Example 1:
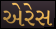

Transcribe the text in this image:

એરેસ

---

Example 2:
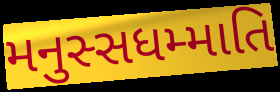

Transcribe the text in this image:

મનુસ્સધમ્માતિ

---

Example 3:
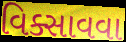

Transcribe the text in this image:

વિક્સાવવા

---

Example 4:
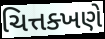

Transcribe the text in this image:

ચિત્તક્ખણે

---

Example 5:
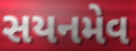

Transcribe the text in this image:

સયનમેવ